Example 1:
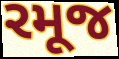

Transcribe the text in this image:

રમૂજ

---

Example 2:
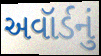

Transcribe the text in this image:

અવૉર્ડનું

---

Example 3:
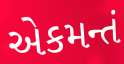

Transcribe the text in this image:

એકમન્તં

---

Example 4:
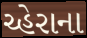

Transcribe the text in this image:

ચ્હેરાના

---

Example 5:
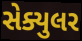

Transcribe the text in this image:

સેક્યુલર